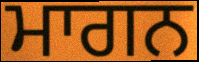
ਮਾਗਨ